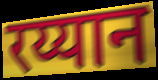
रय्यान